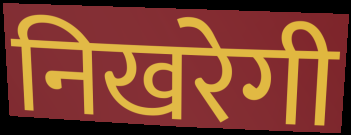
निखरेगी